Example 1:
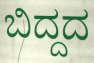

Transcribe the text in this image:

ಬಿದ್ದದ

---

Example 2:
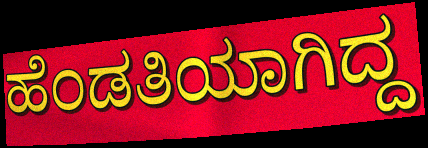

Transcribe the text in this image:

ಹೆಂಡತಿಯಾಗಿದ್ದ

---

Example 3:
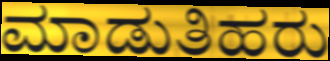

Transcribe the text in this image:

ಮಾಡುತಿಹರು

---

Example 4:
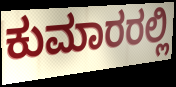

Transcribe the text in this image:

ಕುಮಾರರಲ್ಲಿ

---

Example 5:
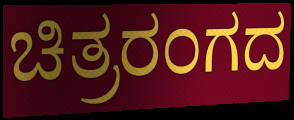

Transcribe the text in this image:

ಚಿತ್ರರಂಗದ